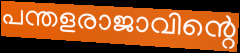
പന്തളരാജാവിന്റെ